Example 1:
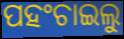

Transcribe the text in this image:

ପହଂଚାଇଲୁ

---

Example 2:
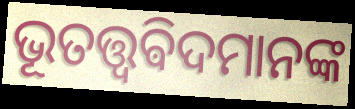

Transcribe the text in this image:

ଭୂତତ୍ତ୍ୱଵିଦମାନଙ୍କ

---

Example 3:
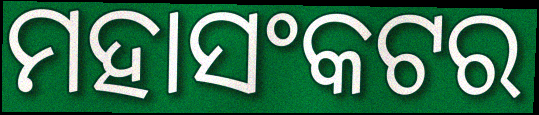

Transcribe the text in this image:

ମହାସଂକଟର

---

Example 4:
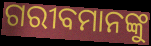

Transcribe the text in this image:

ଗରୀବମାନଙ୍କୁ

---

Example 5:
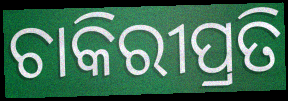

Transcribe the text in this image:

ଚାକିରୀପ୍ରତି